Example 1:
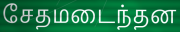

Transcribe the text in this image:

சேதமடைந்தன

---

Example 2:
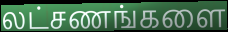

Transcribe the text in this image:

லட்சணங்களை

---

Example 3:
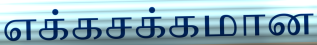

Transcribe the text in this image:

எக்கசக்கமான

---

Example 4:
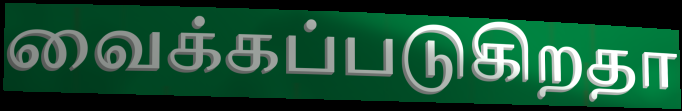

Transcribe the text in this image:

வைக்கப்படுகிறதா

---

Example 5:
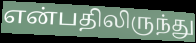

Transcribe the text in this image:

என்பதிலிருந்து